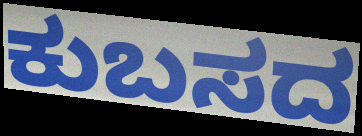
ಕುಬಸದ